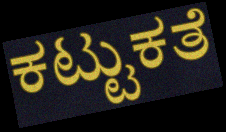
ಕಟ್ಟುಕತೆ